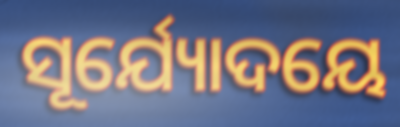
ସୂର୍ଯ୍ୟୋଦୟେ